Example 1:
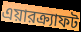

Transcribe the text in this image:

এয়ারক্র্যাফট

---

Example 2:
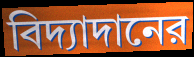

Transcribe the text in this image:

বিদ্যাদানের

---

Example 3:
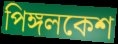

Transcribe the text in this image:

পিঙ্গলকেশ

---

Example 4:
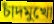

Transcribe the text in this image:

চাঁদমুখো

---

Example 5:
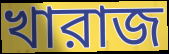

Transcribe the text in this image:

খারাজ